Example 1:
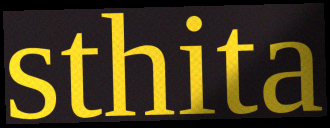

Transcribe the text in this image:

sthita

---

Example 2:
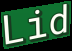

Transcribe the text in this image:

Lid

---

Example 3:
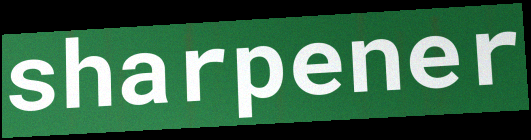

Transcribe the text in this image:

sharpener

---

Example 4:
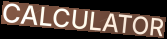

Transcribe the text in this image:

CALCULATOR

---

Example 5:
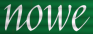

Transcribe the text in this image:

nowe